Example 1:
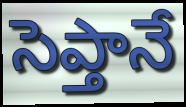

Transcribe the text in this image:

సెప్తానే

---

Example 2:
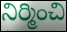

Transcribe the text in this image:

నిర్మించి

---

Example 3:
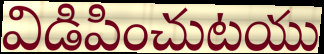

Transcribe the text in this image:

విడిపించుటయు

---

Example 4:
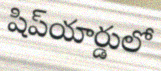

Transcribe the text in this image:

షిప్‌యార్డులో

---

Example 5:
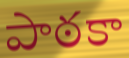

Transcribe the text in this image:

పాఠకా